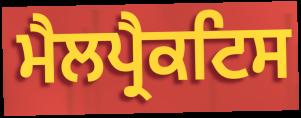
ਮੈਲਪ੍ਰੈਕਟਿਸ